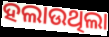
ହଲାଉଥିଲା